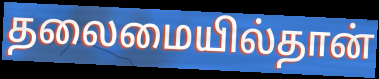
தலைமையில்தான்